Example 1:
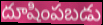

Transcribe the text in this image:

దూషింపబడు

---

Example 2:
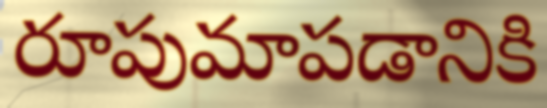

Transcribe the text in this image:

రూపుమాపడానికి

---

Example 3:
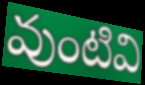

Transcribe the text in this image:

వుంటివి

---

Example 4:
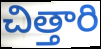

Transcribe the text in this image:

చిత్తారి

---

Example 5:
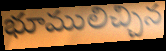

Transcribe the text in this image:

భూములిచ్చిన